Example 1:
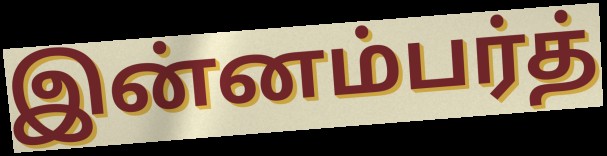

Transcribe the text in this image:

இன்னம்பர்த்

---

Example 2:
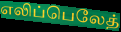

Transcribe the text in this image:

எலிப்பெலேத்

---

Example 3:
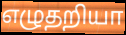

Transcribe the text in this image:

எழுதறியா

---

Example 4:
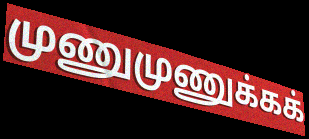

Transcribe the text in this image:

முணுமுணுக்கக்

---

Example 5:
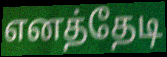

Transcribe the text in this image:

எனத்தேடி